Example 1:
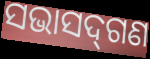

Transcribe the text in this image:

ସଭାସଦ୍‍ଗଣ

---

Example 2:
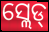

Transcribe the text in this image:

ସ୍ଲେଡ୍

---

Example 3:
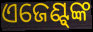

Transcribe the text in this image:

ଏଜେଣ୍ଟ୍‍ଙ୍କ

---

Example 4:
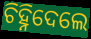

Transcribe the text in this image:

ଚିହ୍ନିଦେଲେ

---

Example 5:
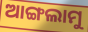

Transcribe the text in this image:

ଆଙ୍ଗଲାମୁ